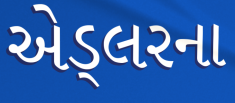
એડ્લરના